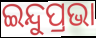
ଇନ୍ଦୁପ୍ରଭା